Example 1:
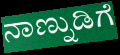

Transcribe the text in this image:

ನಾಣ್ನುಡಿಗೆ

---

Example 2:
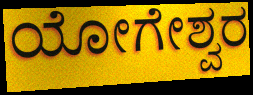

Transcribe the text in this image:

ಯೋಗೇಶ್ವರ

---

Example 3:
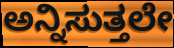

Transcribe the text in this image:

ಅನ್ನಿಸುತ್ತಲೇ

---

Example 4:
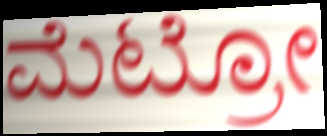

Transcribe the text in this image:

ಮೆಟ್ರೋ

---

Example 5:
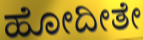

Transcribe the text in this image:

ಹೋದೀತೇ